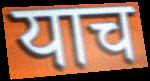
याच